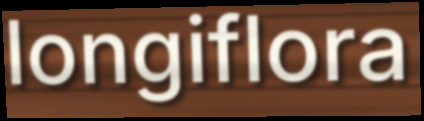
longiflora